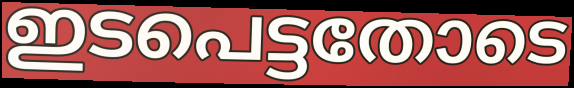
ഇടപെട്ടതോടെ